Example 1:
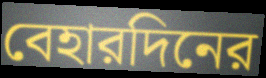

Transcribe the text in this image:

বেহারদিনের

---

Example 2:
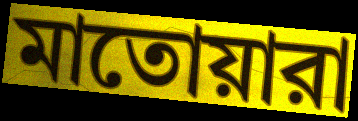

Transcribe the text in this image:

মাতোয়ারা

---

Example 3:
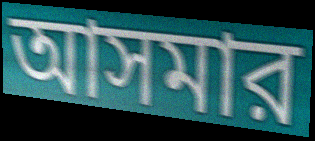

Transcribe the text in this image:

আসমার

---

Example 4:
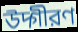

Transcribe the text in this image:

উদ্গীরণ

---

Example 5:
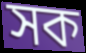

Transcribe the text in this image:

সক